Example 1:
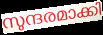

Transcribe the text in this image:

സുന്ദരമാക്കി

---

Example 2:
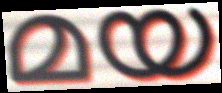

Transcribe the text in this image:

മയ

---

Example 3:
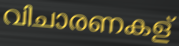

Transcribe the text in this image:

വിചാരണകള്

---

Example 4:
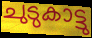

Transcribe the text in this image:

ചുടുകാട്ടു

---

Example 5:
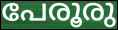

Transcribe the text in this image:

പേരൂരു